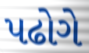
પઢોગે